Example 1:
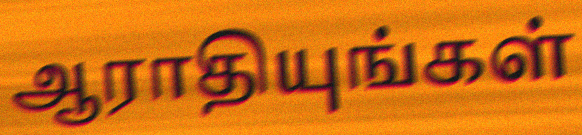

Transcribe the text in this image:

ஆராதியுங்கள்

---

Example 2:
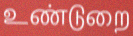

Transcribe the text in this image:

உண்டுறை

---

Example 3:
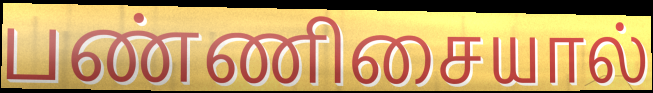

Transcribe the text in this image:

பண்ணிசையால்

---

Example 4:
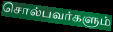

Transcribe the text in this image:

சொல்பவர்களும்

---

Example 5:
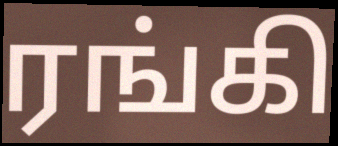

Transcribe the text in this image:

ரங்கி